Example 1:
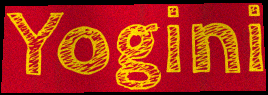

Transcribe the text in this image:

Yogini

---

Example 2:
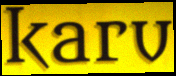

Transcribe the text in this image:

karu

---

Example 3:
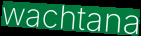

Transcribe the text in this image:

wachtana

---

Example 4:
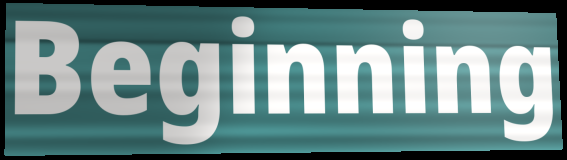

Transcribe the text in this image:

Beginning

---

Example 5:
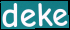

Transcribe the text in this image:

deke